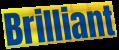
Brilliant